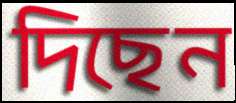
দিছেন